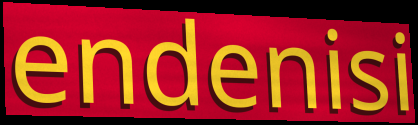
endenisi